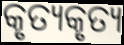
କୃତ୍ଯକୃତ୍ଯ